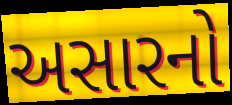
અસારનો